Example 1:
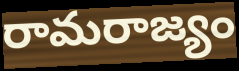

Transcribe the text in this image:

రామరాజ్యం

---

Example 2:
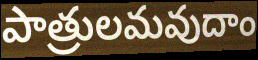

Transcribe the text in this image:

పాత్రులమవుదాం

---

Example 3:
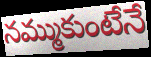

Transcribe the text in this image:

నమ్ముకుంటేనే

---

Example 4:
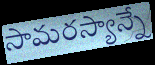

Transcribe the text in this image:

సామరస్యాన్నే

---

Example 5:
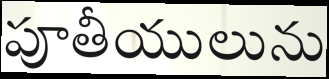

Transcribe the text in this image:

పూతీయులును